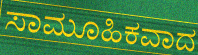
ಸಾಮೂಹಿಕವಾದ